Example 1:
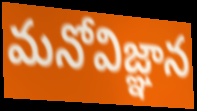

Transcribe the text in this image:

మనోవిజ్ఞాన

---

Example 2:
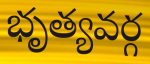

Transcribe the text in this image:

భృత్యవర్గ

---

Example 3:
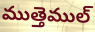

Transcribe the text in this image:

ముత్తెముల్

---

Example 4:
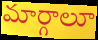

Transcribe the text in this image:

మార్గాలూ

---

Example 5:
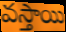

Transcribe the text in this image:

వస్తాయి